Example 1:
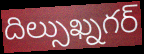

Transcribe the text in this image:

దిల్సుఖ్నగర్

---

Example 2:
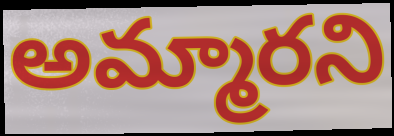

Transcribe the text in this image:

అమ్మారని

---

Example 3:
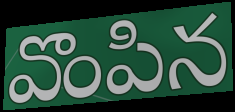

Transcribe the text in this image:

వొంపిన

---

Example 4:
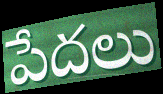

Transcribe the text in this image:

పేదలు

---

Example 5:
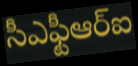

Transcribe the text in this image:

సీఎఫ్టీఆర్ఐ